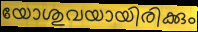
യോശുവയായിരിക്കും